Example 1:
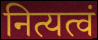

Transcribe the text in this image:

नित्यत्वं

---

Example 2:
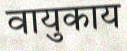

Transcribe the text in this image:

वायुकाय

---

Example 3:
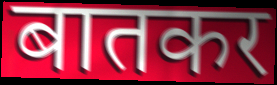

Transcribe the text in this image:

बातकर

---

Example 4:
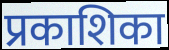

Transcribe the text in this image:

प्रकाशिका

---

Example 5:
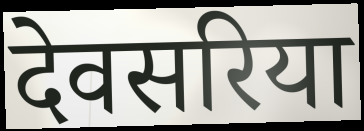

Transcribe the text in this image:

देवसरिया